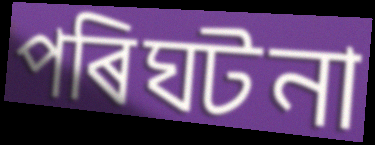
পৰিঘটনা